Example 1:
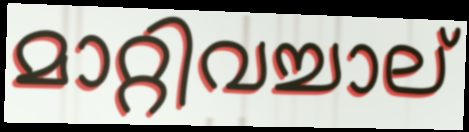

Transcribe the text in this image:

മാറ്റിവച്ചാല്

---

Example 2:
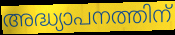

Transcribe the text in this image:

അദ്ധ്യാപനത്തിന്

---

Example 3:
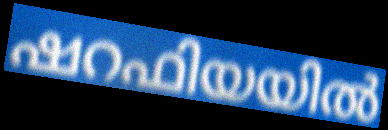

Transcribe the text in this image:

ഷറഫിയയിൽ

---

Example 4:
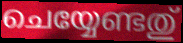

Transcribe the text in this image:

ചെയ്യേണ്ടതു്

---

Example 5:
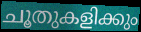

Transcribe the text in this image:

ചൂതുകളിക്കും